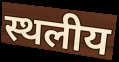
स्थलीय